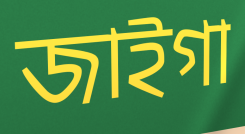
জাইগা